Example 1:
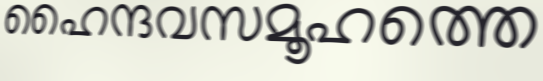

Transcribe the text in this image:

ഹൈന്ദവസമൂഹത്തെ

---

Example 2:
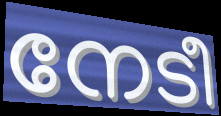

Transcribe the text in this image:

നേടീ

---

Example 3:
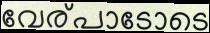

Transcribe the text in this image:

വേര്പാടോടെ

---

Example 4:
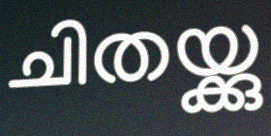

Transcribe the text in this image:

ചിതയ്ക്കു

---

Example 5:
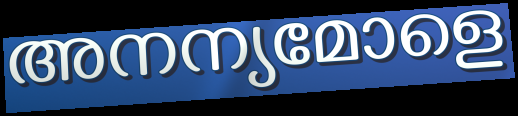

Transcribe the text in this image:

അനന്യമോളെ